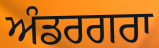
ਅੰਡਰਗਰਾ